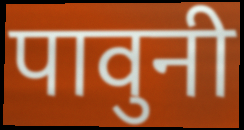
पावुनी